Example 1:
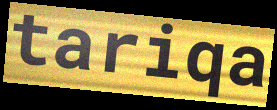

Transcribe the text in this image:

tariqa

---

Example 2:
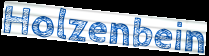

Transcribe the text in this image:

Holzenbein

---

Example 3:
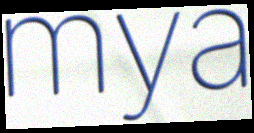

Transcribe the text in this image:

mya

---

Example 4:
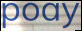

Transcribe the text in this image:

poay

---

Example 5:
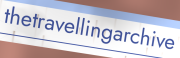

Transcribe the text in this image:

thetravellingarchive